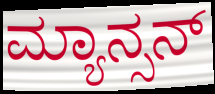
ಮ್ಯಾನ್ಸನ್